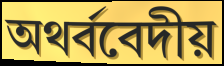
অথর্ববেদীয়